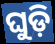
ଘୁଡ଼ି